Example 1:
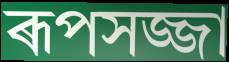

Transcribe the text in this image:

ৰূপসজ্জা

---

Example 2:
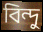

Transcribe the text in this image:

বিন্দু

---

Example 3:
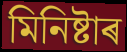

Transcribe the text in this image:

মিনিষ্টাৰ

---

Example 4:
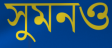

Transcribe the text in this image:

সুমনও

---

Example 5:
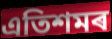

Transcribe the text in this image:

এতিশমৰ